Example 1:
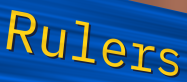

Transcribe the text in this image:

Rulers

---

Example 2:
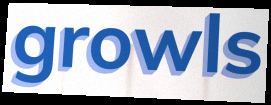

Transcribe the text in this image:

growls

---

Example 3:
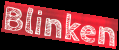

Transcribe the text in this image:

Blinken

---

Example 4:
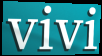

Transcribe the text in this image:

vivi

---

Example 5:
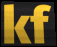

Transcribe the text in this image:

kf